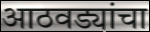
आठवड्यांचा